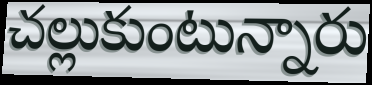
చల్లుకుంటున్నారు